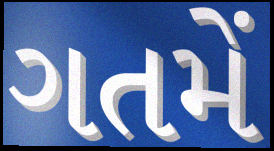
ગતમેં